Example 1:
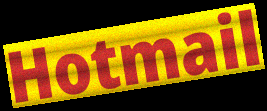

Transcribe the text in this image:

Hotmail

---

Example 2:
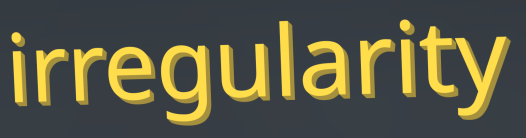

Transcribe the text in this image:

irregularity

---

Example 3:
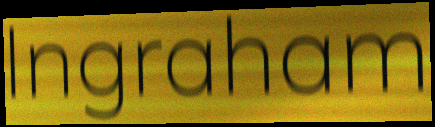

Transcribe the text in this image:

Ingraham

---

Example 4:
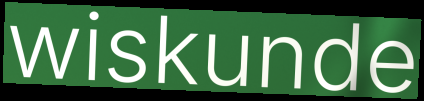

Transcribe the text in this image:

wiskunde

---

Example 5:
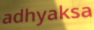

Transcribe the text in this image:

adhyaksa